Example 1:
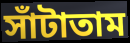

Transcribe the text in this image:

সাঁটাতাম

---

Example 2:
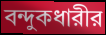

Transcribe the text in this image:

বন্দুকধারীর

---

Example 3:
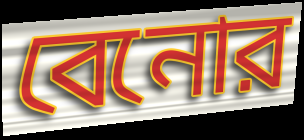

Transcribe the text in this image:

বেনোর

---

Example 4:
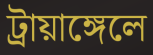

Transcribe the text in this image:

ট্রায়াঙ্গেলে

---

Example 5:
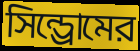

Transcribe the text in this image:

সিন্ড্রোমের